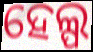
ହେଲ୍ପ